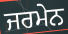
ਜਰਮੇਨ